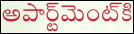
అపార్ట్‌మెంట్‌కి